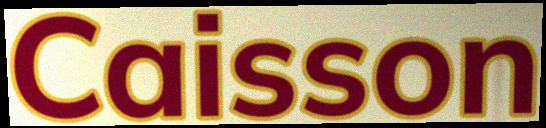
Caisson